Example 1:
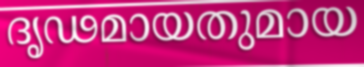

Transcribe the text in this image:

ദൃഢമായതുമായ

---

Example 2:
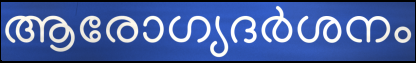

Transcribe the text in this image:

ആരോഗ്യദർശനം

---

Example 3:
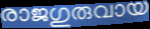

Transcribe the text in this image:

രാജഗുരുവായ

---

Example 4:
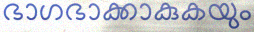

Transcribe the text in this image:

ഭാഗഭാക്കാകുകയും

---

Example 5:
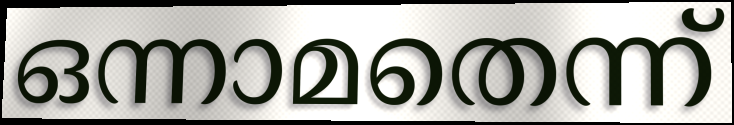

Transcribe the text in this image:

ഒന്നാമതെന്ന്